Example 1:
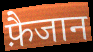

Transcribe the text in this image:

फ़ैजान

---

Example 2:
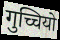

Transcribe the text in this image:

गुच्चियो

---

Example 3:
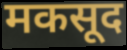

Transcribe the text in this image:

मकसूद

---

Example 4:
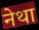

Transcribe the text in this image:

नेथा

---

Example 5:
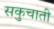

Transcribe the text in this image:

सकुचाती